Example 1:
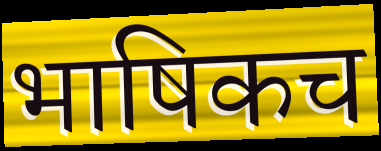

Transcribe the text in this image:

भाषिकच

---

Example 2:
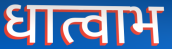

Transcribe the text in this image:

धात्वाभ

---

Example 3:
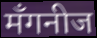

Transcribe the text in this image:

मँगनीज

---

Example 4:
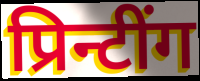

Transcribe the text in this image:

प्रिन्टींग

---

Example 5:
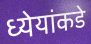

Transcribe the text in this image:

ध्येयांकडे